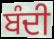
ਬੰਦੀ